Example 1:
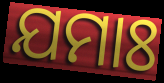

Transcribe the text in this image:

ଯମାଃ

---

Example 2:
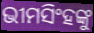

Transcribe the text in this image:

ଭୀମସିଂହଙ୍କୁ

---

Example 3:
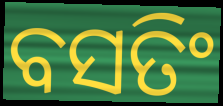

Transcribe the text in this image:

ବସତିଂ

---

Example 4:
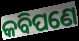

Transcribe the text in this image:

କବିପଣେ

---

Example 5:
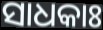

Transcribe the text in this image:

ସାଧକାଃ